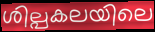
ശില്പകലയിലെ